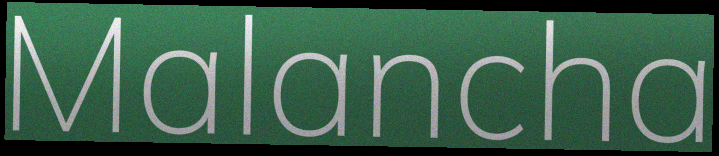
Malancha